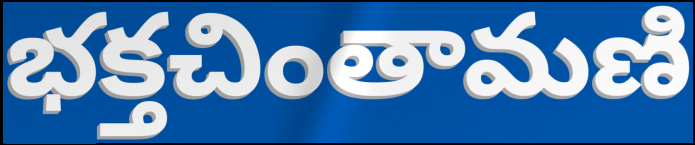
భక్తచింతామణి